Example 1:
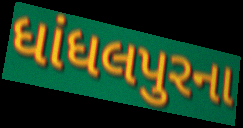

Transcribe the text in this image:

ધાંધલપુરના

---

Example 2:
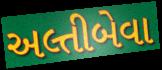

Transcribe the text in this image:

અલ્તીબેવા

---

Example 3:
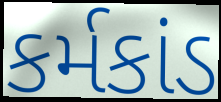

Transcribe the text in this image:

કર્મકાંડ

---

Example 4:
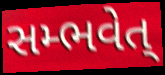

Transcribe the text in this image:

સમ્ભવેત્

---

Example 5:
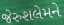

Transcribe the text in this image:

જેરુશલેમને